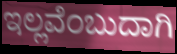
ಇಲ್ಲವೆಂಬುದಾಗಿ